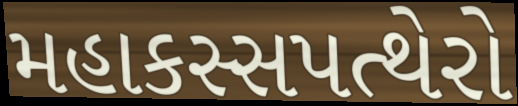
મહાકસ્સપત્થેરો